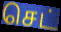
செட்